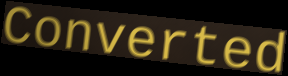
Converted